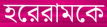
হরেরামকে